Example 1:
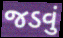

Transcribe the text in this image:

જડવું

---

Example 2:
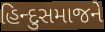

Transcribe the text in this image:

હિન્દુસમાજને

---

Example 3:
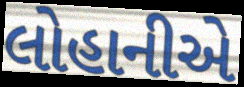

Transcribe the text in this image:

લોહાનીએ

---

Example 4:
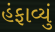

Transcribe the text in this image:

હંફાવ્યું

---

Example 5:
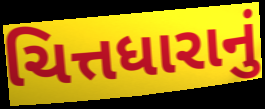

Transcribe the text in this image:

ચિત્તધારાનું